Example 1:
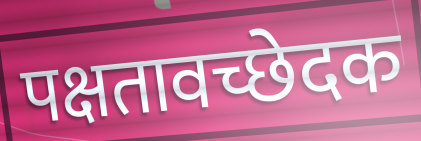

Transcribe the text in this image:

पक्षतावच्छेदक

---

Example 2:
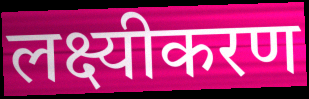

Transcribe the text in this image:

लक्ष्यीकरण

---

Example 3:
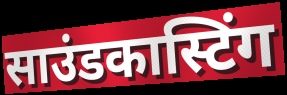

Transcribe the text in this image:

साउंडकास्टिंग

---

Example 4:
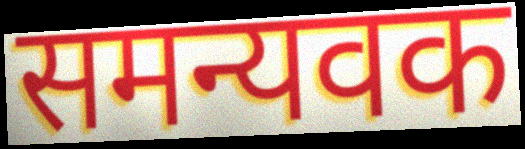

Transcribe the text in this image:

समन्यवक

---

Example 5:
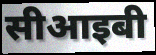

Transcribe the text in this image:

सीआइबी